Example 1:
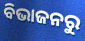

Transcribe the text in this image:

ବିଭାଜନରୁ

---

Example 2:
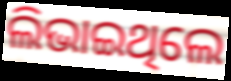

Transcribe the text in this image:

ଲିଭାଇଥିଲେ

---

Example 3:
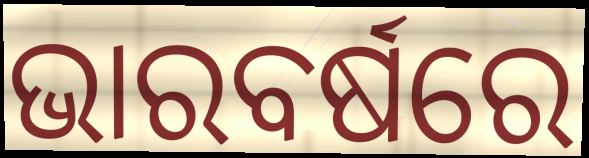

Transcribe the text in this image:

ଭାରବର୍ଷରେ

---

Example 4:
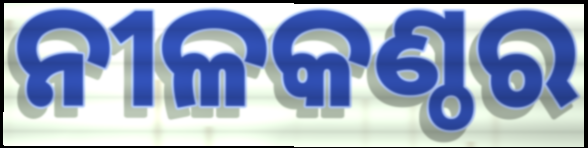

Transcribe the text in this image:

ନୀଳକଣ୍ଠର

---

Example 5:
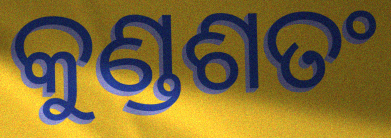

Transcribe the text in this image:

କୁଣ୍ଡଶତଂ